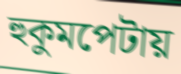
হুকুমপেটায়